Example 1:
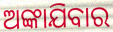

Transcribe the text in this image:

ଅଙ୍କାଯିବାର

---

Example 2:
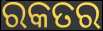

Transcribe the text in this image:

ରକତର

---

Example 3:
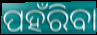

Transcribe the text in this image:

ପହଁରିବା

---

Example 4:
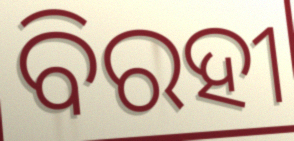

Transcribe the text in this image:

ବିରହୀ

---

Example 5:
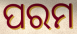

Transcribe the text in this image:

ପରମ